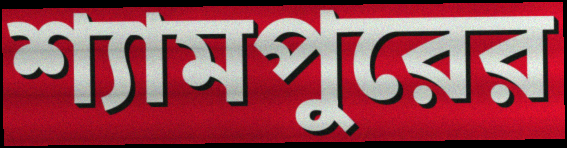
শ্যামপুরের